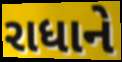
રાધાને